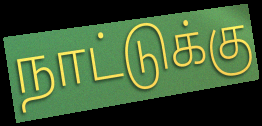
நாட்டுக்கு